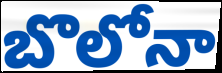
బొలోనా